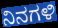
ನಿನಗಳಿ